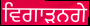
ਵਿਗਾੜਨਗੇ